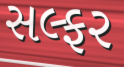
સલ્ફર